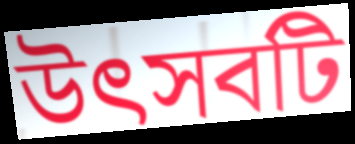
উৎসবটি